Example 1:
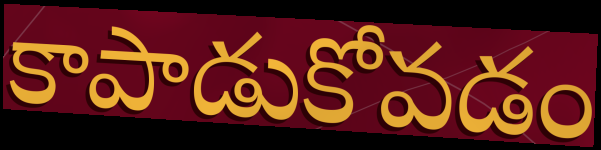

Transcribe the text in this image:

కాపాడుకోవడం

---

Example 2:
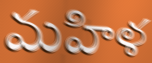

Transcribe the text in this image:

మహిళ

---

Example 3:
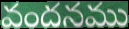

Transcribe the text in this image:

వందనము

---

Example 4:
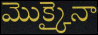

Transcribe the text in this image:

మొక్కైనా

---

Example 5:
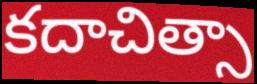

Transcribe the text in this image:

కదాచిత్సా